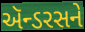
ઍન્ડરસને